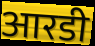
आरडी